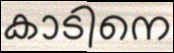
കാടിനെ